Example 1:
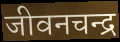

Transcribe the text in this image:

जीवनचन्द्र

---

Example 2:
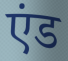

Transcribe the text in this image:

एंड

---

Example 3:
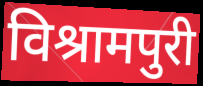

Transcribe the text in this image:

विश्रामपुरी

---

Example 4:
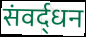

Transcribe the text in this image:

संवर्द्धन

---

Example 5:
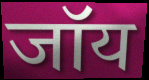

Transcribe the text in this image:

जॉय